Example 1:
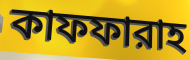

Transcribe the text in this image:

কাফফারাহ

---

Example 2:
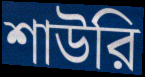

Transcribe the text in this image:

শাউরি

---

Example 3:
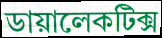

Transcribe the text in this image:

ডায়ালেকটিক্স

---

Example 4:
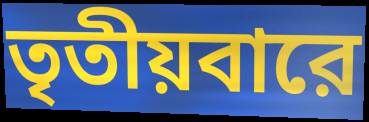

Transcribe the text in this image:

তৃতীয়বারে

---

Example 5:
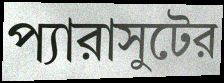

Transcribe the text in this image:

প্যারাসুটের